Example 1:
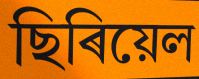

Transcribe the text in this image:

ছিৰিয়েল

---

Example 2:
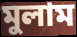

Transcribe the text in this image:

মুলাম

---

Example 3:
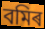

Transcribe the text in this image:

বমিৰ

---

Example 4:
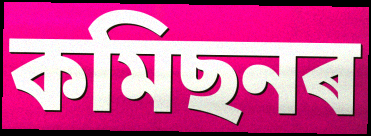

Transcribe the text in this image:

কমিছনৰ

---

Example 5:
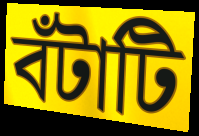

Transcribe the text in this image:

বঁটাটি